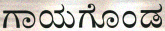
ಗಾಯಗೊಂಡ